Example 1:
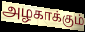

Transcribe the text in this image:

அழகாக்கும்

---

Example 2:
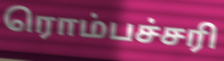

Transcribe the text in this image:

ரொம்பச்சரி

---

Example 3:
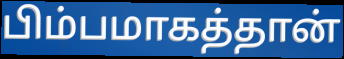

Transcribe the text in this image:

பிம்பமாகத்தான்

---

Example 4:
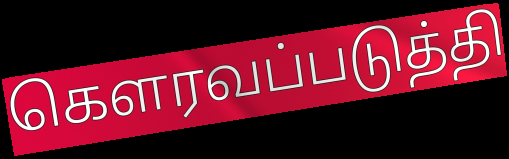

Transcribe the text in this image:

கெளரவப்படுத்தி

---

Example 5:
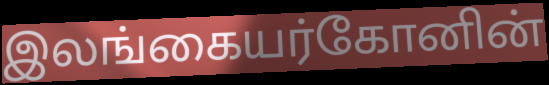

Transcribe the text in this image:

இலங்கையர்கோனின்